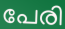
പേരി